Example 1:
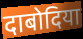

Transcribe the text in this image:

दाबोदिया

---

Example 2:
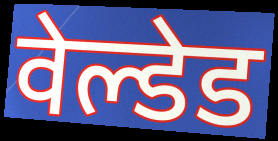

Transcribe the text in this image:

वेल्डेड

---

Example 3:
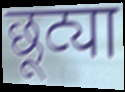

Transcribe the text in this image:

छूट्या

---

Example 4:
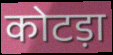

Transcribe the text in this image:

कोटड़ा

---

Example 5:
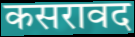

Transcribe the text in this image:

कसरावद